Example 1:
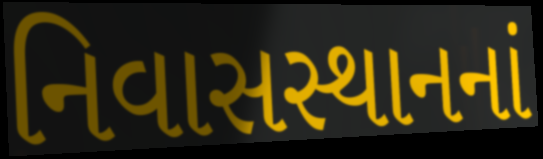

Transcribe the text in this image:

નિવાસસ્થાનનાં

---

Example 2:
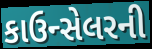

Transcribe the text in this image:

કાઉન્સેલરની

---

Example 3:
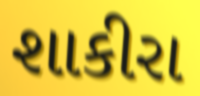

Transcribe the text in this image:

શાકીરા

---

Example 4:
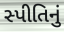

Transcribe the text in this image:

સ્પીતિનું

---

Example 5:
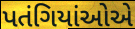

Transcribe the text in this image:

પતંગિયાંઓએ